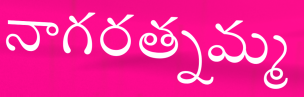
నాగరత్నమ్మ